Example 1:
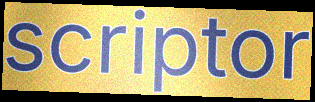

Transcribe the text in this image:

scriptor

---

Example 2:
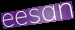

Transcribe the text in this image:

eesan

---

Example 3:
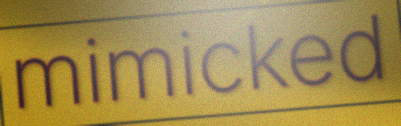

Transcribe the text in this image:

mimicked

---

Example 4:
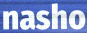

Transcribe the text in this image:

nasho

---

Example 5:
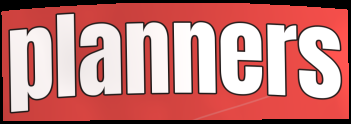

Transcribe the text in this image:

planners